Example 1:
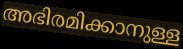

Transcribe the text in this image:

അഭിരമിക്കാനുള്ള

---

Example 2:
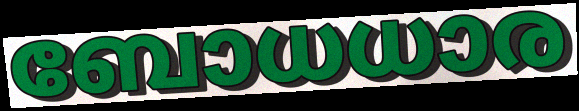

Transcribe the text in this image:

ബോധധാര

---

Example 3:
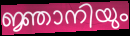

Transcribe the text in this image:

ജ്ഞാനിയും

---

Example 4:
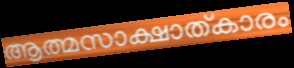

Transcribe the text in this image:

ആത്മസാക്ഷാത്കാരം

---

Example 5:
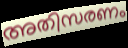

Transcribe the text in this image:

അതിസരണം